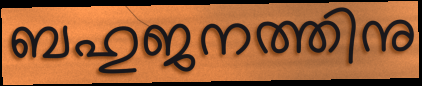
ബഹുജനത്തിനു